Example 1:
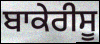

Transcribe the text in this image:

ਬਾਕੇਰੀਸੂ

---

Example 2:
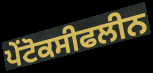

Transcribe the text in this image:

ਪੇਂਟੋਕਸੀਫਲੀਨ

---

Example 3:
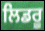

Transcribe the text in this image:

ਲਿਡਰੂ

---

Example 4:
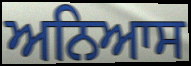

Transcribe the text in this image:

ਅਨਿਆਸ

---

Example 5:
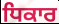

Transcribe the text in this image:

ਧਿਕਾਰ